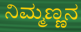
ನಿಮ್ಮಣ್ಣನ